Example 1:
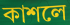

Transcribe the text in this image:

কাশলে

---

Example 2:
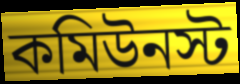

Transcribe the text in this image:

কমিউনস্ট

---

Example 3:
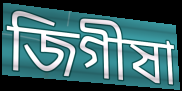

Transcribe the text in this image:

জিগীষা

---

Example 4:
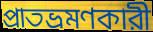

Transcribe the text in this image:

প্রাতভ্রমণকারী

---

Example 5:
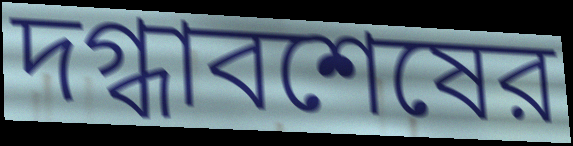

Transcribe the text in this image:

দগ্ধাবশেষের